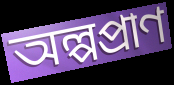
অল্পপ্রাণ